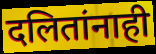
दलितांनाही